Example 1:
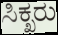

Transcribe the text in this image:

ಸಿಕ್ಖರು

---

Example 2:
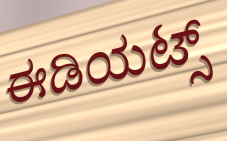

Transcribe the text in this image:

ಈಡಿಯಟ್ಸ್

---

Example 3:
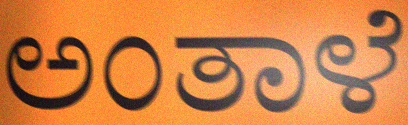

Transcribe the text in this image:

ಅಂತಾಳೆ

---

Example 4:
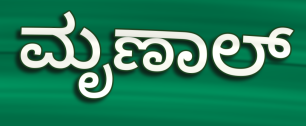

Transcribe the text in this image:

ಮೃಣಾಲ್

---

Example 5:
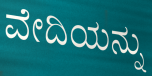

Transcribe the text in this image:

ವೇದಿಯನ್ನು